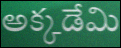
అక్కడేమి